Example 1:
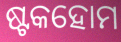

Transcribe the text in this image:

ଷ୍ଟକହୋମ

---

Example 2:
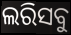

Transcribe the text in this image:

ଲରିସବୁ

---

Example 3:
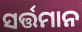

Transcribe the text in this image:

ସର୍ତ୍ତମାନ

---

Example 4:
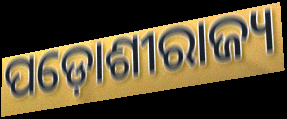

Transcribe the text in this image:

ପଡ଼ୋଶୀରାଜ୍ୟ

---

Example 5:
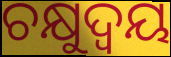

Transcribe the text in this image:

ଚକ୍ଷୁଦ୍ଵୟ